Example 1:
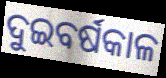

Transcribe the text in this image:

ଦୁଇବର୍ଷକାଳ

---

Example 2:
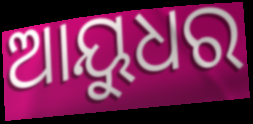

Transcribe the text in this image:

ଆୟୁଧର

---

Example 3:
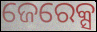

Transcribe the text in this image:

ଜେରେକ୍ସ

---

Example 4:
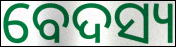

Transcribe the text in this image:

ବେଦସ୍ୟ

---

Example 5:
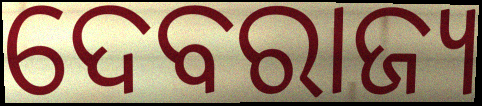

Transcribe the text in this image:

ଦେବରାଜ୍ୟ